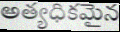
అత్యధికమైన